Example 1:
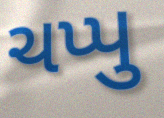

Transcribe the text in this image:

ચપ્પુ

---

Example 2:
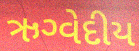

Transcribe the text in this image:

ઋગ્વેદીય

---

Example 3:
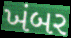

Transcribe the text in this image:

ખંબર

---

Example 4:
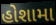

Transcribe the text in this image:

હોશામા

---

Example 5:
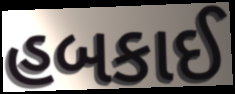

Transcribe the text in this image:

હબકાઈ